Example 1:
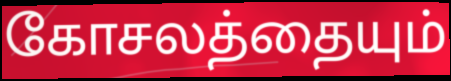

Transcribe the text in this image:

கோசலத்தையும்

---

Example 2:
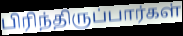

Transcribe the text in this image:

பிரிந்திருப்பார்கள்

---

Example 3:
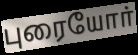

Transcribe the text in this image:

புரையோர்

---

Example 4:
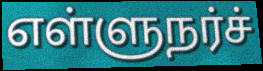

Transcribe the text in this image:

எள்ளுநர்ச்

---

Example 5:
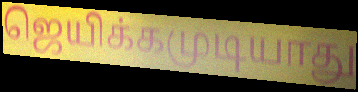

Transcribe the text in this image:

ஜெயிக்கமுடியாது